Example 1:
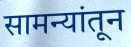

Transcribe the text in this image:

सामन्यांतून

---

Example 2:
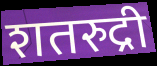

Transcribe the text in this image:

शतरुद्री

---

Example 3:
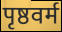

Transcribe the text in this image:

पृष्ठवर्म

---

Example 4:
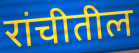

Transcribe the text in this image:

रांचीतील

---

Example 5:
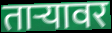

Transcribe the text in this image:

ताऱ्यावर